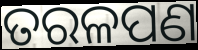
ତରଳପଣ